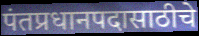
पंतप्रधानपदासाठीचे